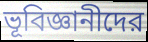
ভূবিজ্ঞানীদের